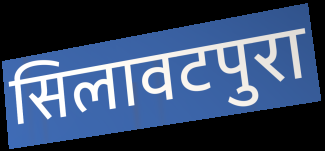
सिलावटपुरा